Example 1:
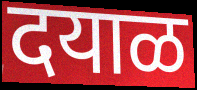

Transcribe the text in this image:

दयाळ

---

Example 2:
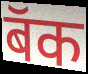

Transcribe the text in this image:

बॅक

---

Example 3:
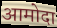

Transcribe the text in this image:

आमोदा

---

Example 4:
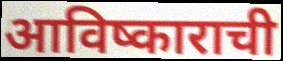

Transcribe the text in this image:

आविष्काराची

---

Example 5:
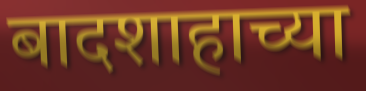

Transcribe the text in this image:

बादशाहाच्या